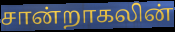
சான்றாகலின்